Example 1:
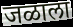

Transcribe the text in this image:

जळाला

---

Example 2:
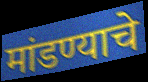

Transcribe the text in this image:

मांडण्याचे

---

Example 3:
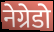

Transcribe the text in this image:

नेग्रेडो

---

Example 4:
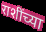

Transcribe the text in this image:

राशींच्या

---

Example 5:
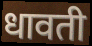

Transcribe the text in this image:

धावती